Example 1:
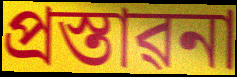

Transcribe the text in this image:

প্ৰস্তাৱনা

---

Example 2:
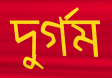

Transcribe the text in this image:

দুৰ্গম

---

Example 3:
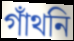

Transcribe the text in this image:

গাঁথনি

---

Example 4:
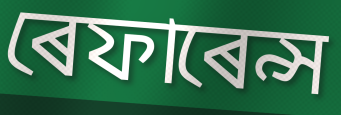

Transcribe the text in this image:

ৰেফাৰেন্স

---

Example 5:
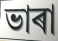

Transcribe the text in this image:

ভাৰা